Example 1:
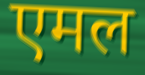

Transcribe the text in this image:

एमल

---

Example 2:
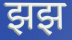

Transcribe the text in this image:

झझ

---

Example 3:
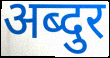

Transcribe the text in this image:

अब्दुर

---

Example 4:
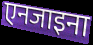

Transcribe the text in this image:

एनजाइना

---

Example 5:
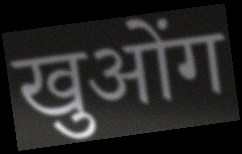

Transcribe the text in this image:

खुओंग